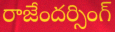
రాజేందర్సింగ్